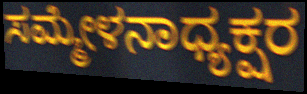
ಸಮ್ಮೇಳನಾಧ್ಯಕ್ಷರ